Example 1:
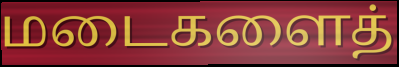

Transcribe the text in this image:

மடைகளைத்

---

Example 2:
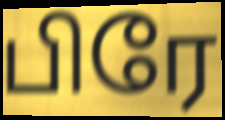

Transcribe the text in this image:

பிரே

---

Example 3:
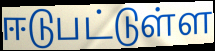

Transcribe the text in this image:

ஈடுபட்டுள்ள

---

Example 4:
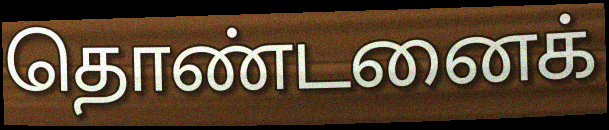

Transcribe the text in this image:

தொண்டனைக்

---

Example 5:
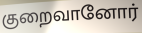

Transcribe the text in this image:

குறைவானோர்